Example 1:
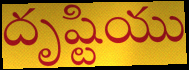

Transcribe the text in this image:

దృష్టియు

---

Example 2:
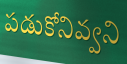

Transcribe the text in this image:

పడుకోనివ్వని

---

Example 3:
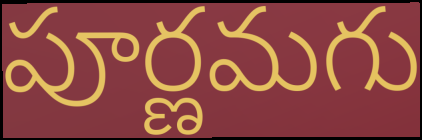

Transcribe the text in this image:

పూర్ణమగు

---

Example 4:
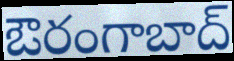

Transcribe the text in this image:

ఔరంగాబాద్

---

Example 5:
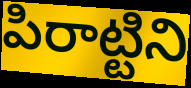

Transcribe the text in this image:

పిరాట్టిని